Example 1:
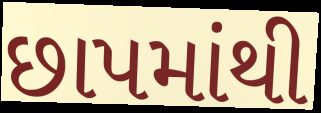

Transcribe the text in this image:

છાપમાંથી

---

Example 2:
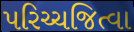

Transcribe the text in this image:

પરિચ્ચજિત્વા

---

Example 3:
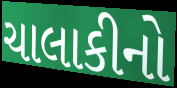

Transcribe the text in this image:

ચાલાકીનો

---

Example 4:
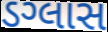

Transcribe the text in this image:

ડગ્લાસ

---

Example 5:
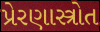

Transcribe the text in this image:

પ્રેરણાસ્ત્રોત